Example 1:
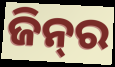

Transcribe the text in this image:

ଜିନ୍‌ର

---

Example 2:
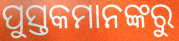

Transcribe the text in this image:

ପୁସ୍ତକମାନଙ୍କରୁ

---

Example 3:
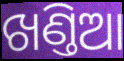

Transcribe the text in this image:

ଖଣ୍ତିଆ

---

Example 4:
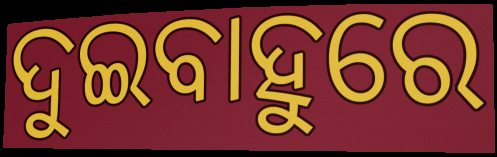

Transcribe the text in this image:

ଦୁଇବାହୁରେ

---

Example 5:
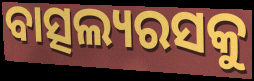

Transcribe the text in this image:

ବାତ୍ସଲ୍ୟରସକୁ